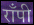
राँपी